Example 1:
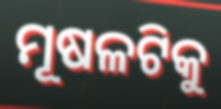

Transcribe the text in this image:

ମୂଷଳଟିକୁ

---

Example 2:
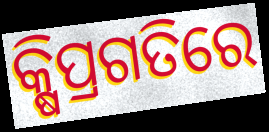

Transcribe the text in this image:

କ୍ଷିପ୍ରଗତିରେ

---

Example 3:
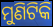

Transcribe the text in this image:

ମୁଣିଟିକି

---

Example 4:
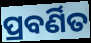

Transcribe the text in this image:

ପ୍ରବର୍ଣିତ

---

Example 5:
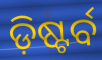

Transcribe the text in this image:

ଡ଼ିଷ୍ଟର୍ବ